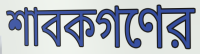
শাবকগণের